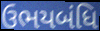
ઉભયબંધિ